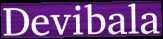
Devibala